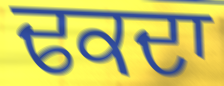
ਢਕਦਾ